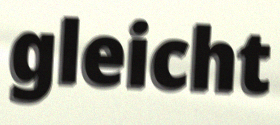
gleicht